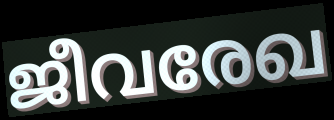
ജീവരേഖ